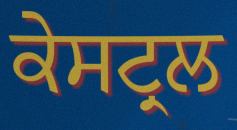
ਕੇਸਟ੍ਰਲ